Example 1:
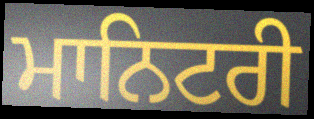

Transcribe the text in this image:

ਮਾਨਿਟਰੀ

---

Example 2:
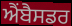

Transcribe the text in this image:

ਐਂਬੈਸਡਰ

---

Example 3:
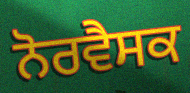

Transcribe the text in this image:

ਨੋਰਵੈਸਕ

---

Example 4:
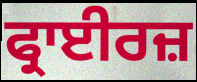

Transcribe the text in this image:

ਫ੍ਰਾਈਰਜ਼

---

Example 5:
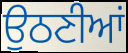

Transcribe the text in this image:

ਉਠਣੀਆਂ